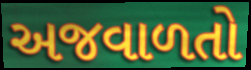
અજવાળતો